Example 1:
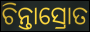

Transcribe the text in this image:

ଚିନ୍ତାସ୍ରୋତ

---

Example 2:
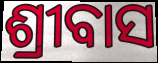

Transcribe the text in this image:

ଶ୍ରୀବାସ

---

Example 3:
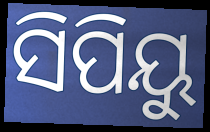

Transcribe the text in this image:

ସିପିୟୁ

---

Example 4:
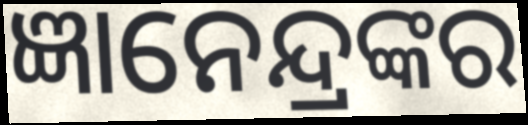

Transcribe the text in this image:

ଜ୍ଞାନେନ୍ଦ୍ରଙ୍କର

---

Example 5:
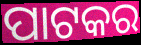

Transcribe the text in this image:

ପାଟକର